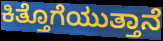
ಕಿತ್ತೊಗೆಯುತ್ತಾನೆ